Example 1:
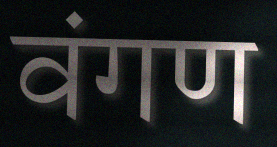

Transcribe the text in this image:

वंगण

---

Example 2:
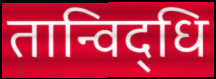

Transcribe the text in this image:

तान्विद्धि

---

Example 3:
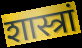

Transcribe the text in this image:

शास्त्रां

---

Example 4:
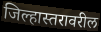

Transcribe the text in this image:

जिल्हास्तरावरील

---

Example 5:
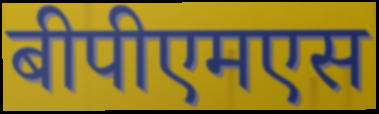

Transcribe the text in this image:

बीपीएमएस